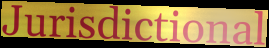
Jurisdictional